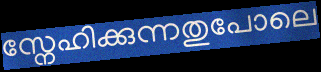
സ്നേഹിക്കുന്നതുപോലെ